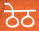
ਠੇਠ